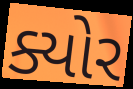
ક્યોર